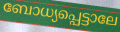
ബോധ്യപ്പെട്ടാലേ